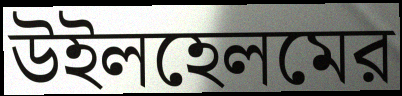
উইলহেলমের